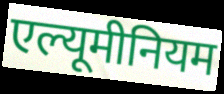
एल्यूमीनियम